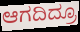
ಆಗದಿದ್ರೂ